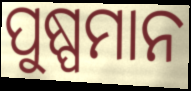
ପୁଷ୍ପମାନ